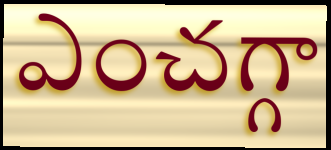
ఎంచగ్గా